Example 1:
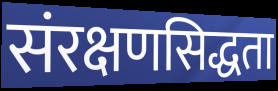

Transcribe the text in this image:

संरक्षणसिद्धता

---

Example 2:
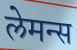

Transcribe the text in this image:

लेमन्स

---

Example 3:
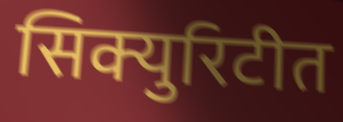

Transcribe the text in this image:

सिक्युरिटीत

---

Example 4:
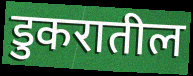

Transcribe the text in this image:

डुकरातील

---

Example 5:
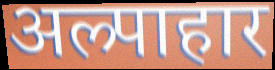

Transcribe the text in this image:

अल्पाहार